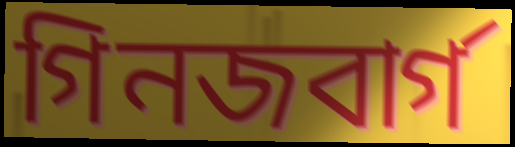
গিনজবার্গ